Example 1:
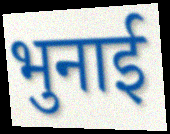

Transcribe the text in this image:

भुनाई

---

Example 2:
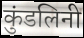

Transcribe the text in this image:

कुंडलिनी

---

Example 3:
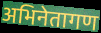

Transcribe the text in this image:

अभिनेतागण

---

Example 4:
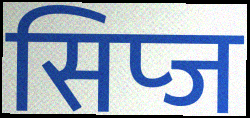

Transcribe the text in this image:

सिप्ज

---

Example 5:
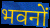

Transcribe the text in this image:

भवनों